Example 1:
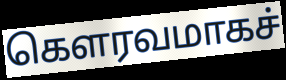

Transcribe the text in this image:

கௌரவமாகச்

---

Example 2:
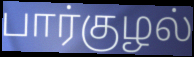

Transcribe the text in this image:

பார்குழல்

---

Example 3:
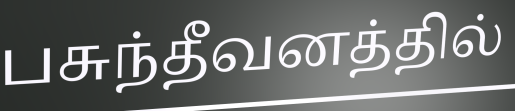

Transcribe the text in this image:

பசுந்தீவனத்தில்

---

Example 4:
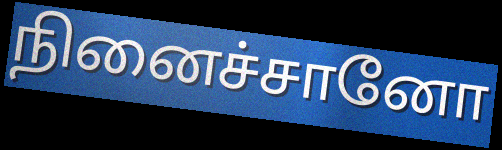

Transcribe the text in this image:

நினைச்சானோ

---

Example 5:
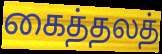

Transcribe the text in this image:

கைத்தலத்